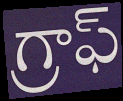
గ్రాఫ్